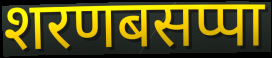
शरणबसप्पा